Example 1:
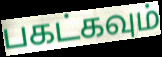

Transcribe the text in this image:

பகட்கவும்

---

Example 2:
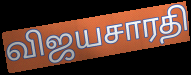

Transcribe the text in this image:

விஜயசாரதி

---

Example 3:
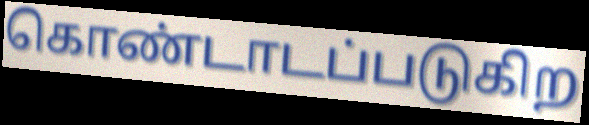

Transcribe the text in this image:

கொண்டாடப்படுகிற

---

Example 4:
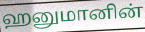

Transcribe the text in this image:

ஹனுமானின்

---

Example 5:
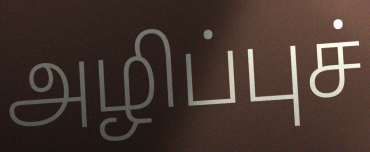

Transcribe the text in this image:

அழிப்புச்